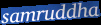
samruddha